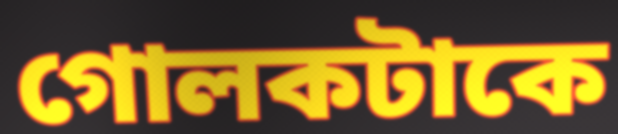
গোলকটাকে